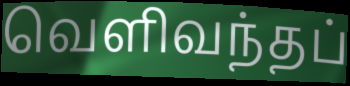
வெளிவந்தப்